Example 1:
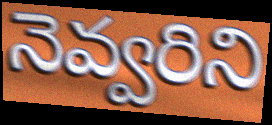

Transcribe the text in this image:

నెవ్వరిని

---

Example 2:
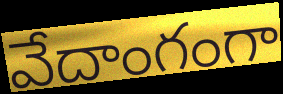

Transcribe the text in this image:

వేదాంగంగా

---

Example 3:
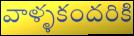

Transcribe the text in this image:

వాళ్ళకందరికి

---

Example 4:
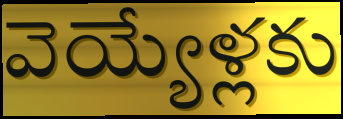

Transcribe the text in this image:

వెయ్యేళ్లకు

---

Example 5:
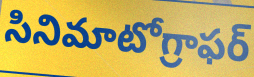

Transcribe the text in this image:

సినిమాటోగ్రాఫర్